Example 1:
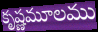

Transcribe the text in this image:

కృష్ణమూలము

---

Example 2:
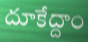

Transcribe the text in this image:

దూకేద్దాం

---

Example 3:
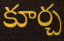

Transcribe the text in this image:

కూర్చ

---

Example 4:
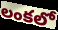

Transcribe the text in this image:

లంకలో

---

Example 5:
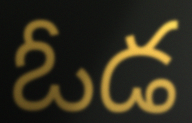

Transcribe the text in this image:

ఓడ